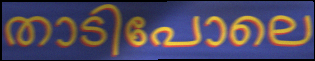
താടിപോലെ